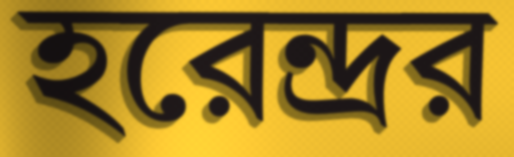
হরেন্দ্রর